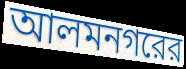
আলমনগরের